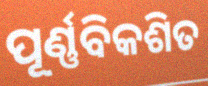
ପୂର୍ଣ୍ଣବିକଶିତ